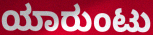
ಯಾರುಂಟು